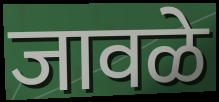
जावळे